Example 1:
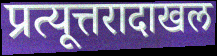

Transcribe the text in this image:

प्रत्यूत्तरादाखल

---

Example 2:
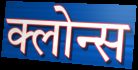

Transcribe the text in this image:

क्लोन्स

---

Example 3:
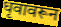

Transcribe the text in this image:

धृवावरून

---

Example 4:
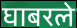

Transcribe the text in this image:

घाबरले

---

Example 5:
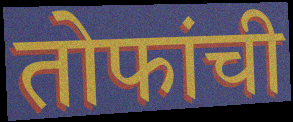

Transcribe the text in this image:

तोफांची